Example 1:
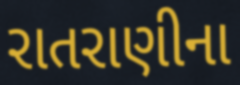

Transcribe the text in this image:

રાતરાણીના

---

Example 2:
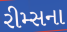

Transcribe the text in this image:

રીમ્સના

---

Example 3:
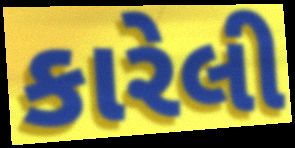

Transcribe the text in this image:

કારેલી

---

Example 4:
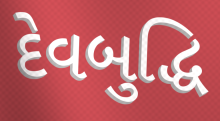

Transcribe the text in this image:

દેવબુદ્ધિ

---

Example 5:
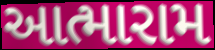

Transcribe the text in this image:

આત્મારામ